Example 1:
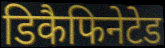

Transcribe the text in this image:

डिकैफिनेटेड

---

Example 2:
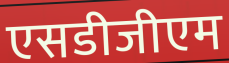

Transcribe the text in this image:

एसडीजीएम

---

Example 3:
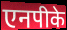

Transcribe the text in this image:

एनपीके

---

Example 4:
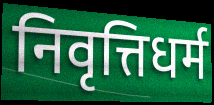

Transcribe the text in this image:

निवृत्तिधर्म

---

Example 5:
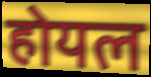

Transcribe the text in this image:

होयल